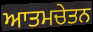
ਆਤਮਚੇਤਨ